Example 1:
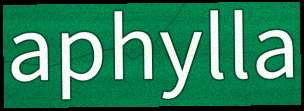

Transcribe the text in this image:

aphylla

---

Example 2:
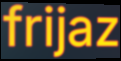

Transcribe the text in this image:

frijaz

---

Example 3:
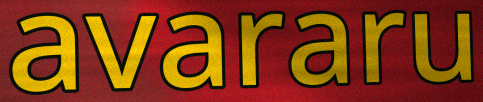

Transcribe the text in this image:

avararu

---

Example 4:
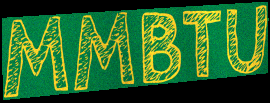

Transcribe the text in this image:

MMBTU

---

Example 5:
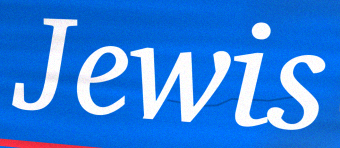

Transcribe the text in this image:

Jewis